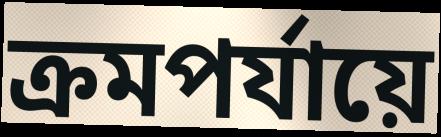
ক্রমপর্যায়ে